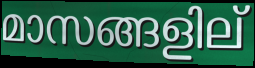
മാസങ്ങളില്